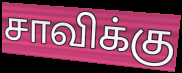
சாவிக்கு